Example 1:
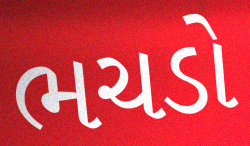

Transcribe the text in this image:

ભચડો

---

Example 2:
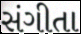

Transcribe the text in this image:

સંગીતા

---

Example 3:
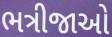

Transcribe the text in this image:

ભત્રીજાઓ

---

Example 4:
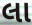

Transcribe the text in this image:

લા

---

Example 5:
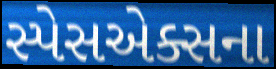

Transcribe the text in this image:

સ્પેસએક્સના